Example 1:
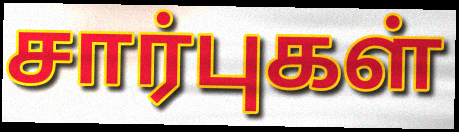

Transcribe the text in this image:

சார்புகள்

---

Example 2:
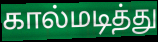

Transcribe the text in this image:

கால்மடித்து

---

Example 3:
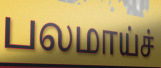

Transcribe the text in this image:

பலமாய்ச்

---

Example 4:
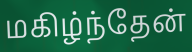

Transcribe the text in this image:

மகிழ்ந்தேன்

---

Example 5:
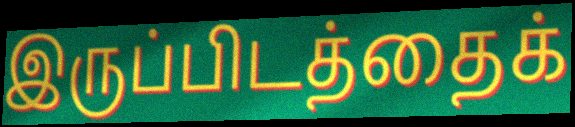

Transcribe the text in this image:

இருப்பிடத்தைக்